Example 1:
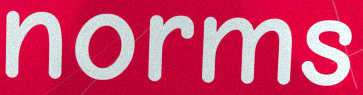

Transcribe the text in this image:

norms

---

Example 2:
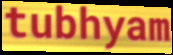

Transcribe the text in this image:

tubhyam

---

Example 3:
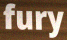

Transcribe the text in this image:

fury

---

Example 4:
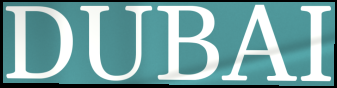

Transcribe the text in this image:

DUBAI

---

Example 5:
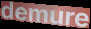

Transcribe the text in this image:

demure